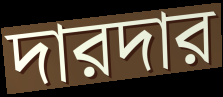
দারদার